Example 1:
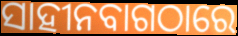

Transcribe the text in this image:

ସାହୀନବାଗଠାରେ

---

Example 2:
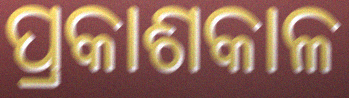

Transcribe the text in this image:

ପ୍ରକାଶକାଳ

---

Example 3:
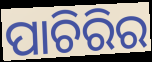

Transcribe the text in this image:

ପାଚିରିର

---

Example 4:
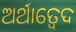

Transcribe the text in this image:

ଅର୍ଥାତ୍ବେଦ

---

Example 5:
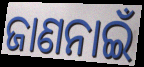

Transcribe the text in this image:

ଜାଣନାଇଁ